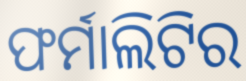
ଫର୍ମାଲିଟିର